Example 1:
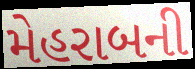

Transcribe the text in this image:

મેહરાબની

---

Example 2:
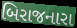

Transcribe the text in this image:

બિરાજનારા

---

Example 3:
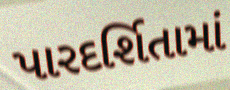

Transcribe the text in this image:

પારદર્શિતામાં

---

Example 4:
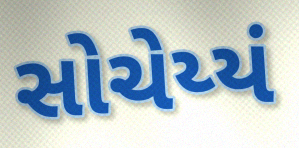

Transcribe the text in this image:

સોચેય્યં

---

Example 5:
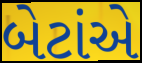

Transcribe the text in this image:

બેટાંએ